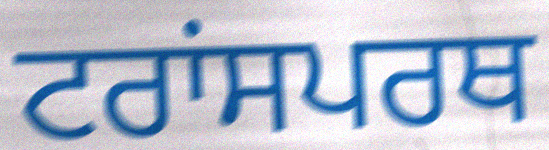
ਟਰਾਂਸਪਰਥ